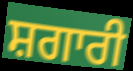
ਸ਼ਗਾਰੀ